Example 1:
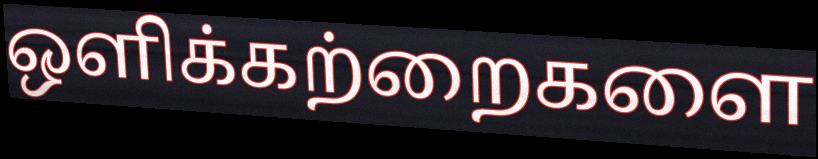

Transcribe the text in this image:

ஒளிக்கற்றைகளை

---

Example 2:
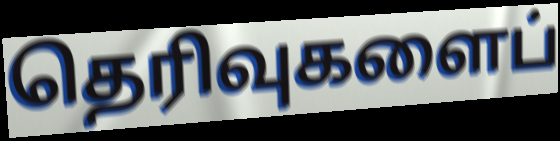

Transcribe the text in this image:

தெரிவுகளைப்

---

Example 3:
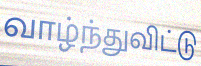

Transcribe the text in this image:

வாழ்ந்துவிட்டு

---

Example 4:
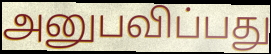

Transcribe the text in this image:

அனுபவிப்பது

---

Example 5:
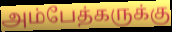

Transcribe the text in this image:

அம்பேத்கருக்கு